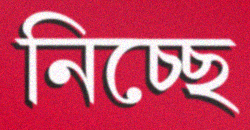
নিচ্ছে